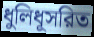
ধুলিধূসরিত